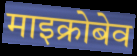
माइक्रोबेव